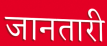
जानतारी